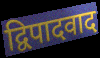
द्विपादवाद